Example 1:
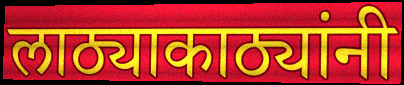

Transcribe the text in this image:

लाठ्याकाठ्यांनी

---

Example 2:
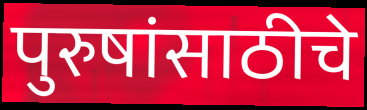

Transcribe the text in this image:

पुरुषांसाठीचे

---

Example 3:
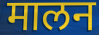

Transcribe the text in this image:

मालन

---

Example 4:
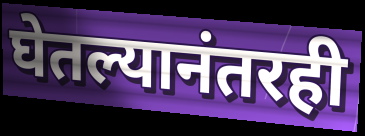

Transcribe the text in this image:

घेतल्यानंतरही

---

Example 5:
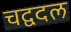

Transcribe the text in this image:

चद्वदल